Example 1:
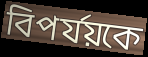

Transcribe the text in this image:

বিপর্যয়কে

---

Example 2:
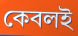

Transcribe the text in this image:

কেবলই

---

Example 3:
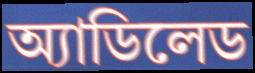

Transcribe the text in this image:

অ্যাডিলেড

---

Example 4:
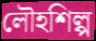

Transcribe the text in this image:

লৌহশিল্প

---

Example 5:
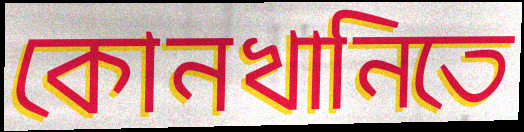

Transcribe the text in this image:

কোনখানিতে